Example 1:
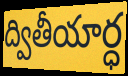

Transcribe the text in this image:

ద్వితీయార్ధ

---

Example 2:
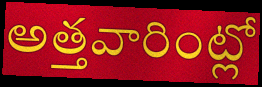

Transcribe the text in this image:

అత్తవారింట్లో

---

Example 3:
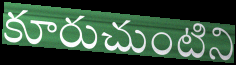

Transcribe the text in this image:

కూరుచుంటిని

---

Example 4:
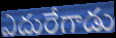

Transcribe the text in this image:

ఎదురేగాడు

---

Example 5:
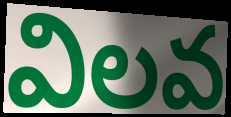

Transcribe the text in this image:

విలవ